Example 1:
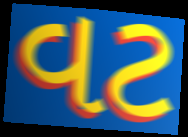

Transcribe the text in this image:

વટ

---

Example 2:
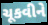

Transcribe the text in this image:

ચૂકવીને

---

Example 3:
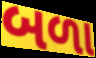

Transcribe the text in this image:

બળા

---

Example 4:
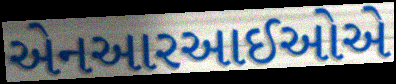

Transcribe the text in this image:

એનઆરઆઈઓએ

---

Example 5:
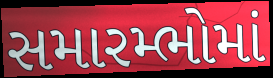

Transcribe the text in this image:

સમારમ્ભોમાં